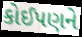
કોઈપણને